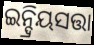
ଇନ୍ଦ୍ରିୟସତ୍ତା